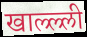
खाल्ल्ली